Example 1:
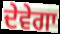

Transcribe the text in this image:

ਦੇਵੇਗਾ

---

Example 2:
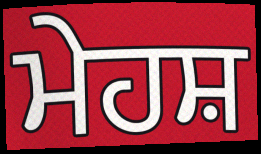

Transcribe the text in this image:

ਮੇਹਸ਼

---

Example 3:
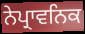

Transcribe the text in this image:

ਨੇਪ੍ਰਾਵਨਿਕ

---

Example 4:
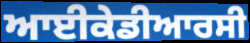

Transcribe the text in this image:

ਆਈਕੇਡੀਆਰਸੀ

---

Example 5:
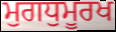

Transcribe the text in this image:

ਮੁਗਧੁਮੂਰਖ